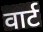
वार्ट